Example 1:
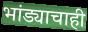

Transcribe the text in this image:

भांड्याचाही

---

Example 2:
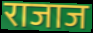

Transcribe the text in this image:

राजाज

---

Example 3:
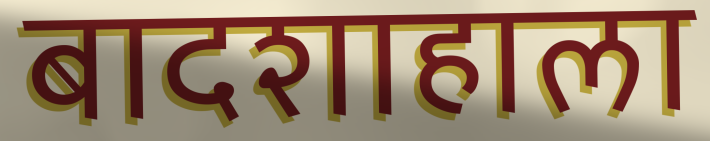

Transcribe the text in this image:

बादशाहाला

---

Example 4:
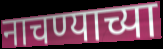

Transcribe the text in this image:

नाचण्याच्या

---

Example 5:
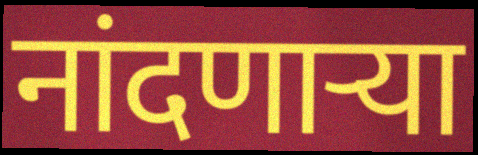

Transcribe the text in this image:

नांदणाऱ्या